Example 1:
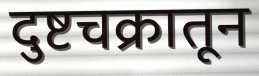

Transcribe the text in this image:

दुष्टचक्रातून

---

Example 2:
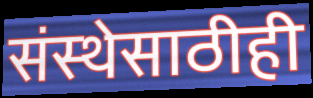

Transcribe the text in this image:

संस्थेसाठीही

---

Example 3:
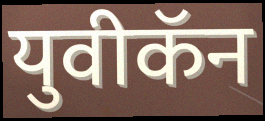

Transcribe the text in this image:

युवीकॅन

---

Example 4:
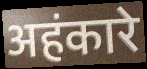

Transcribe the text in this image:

अहंकारे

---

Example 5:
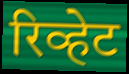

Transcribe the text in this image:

रिव्हेट